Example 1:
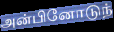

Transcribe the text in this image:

அன்பினோடுந்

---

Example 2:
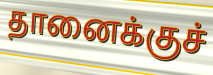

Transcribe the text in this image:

தானைக்குச்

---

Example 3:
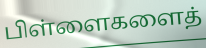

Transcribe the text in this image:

பிள்ளைகளைத்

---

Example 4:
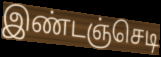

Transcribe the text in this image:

இண்டஞ்செடி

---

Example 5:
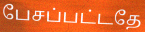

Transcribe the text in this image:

பேசப்பட்டதே